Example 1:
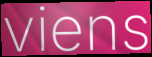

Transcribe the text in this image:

viens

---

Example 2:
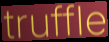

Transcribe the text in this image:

truffle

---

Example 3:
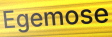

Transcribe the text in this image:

Egemose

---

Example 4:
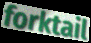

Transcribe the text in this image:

forktail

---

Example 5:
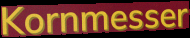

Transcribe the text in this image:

Kornmesser